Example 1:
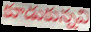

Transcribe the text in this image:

కూడుకున్నవి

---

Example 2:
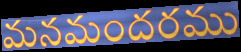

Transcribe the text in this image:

మనమందరము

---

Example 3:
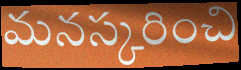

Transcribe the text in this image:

మనస్కరించి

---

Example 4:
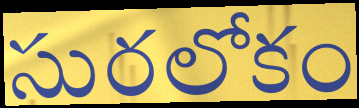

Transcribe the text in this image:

సురలోకం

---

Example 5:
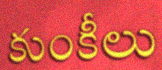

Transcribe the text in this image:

కుంకీలు